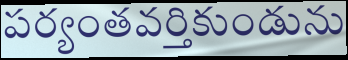
పర్యంతవర్తికుండును